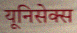
यूनिसेक्स